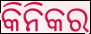
କିନିକର